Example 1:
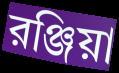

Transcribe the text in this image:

রঞ্জিয়া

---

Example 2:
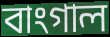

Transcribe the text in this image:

বাংগাল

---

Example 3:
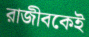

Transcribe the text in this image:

রাজীবকেই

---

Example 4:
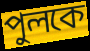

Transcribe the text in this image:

পুলকে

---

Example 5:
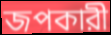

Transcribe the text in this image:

জপকারী